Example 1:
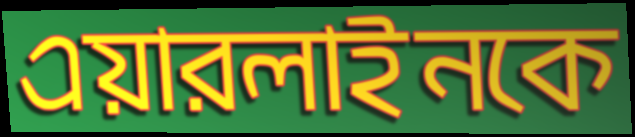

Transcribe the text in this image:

এয়ারলাইনকে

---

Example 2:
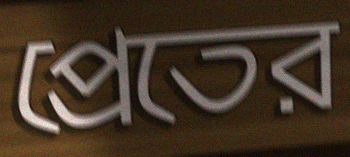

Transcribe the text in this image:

প্রেতের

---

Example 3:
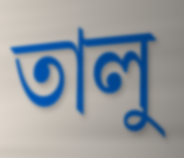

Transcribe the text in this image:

তালু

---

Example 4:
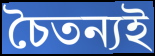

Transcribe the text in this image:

চৈতন্যই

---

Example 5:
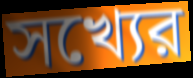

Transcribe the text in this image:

সখ্যের